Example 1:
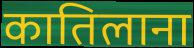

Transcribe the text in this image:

कातिलाना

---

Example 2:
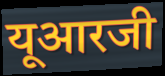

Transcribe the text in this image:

यूआरजी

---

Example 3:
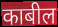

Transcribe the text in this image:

काबील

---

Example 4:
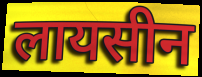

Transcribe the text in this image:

लायसीन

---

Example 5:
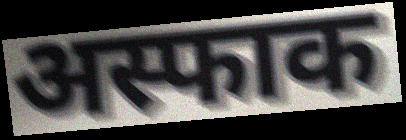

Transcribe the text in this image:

अस्फाक